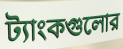
ট্যাংকগুলোর